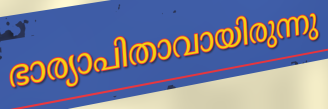
ഭാര്യാപിതാവായിരുന്നു